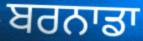
ਬਰਨਾਡਾ